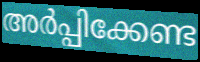
അർപ്പിക്കേണ്ട